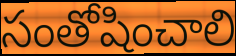
సంతోషించాలి